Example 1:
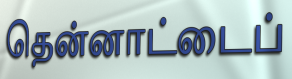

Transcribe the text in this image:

தென்னாட்டைப்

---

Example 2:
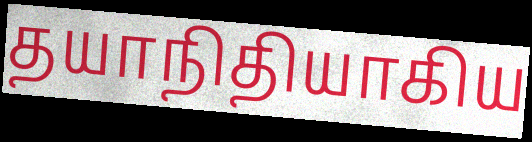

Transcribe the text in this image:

தயாநிதியாகிய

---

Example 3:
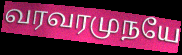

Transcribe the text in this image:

வரவரமுநயே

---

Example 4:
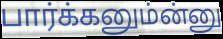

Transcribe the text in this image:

பார்க்கனும்ன்னு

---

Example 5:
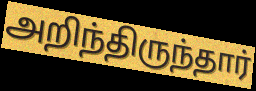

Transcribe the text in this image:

அறிந்திருந்தார்